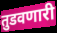
तुडवणारी